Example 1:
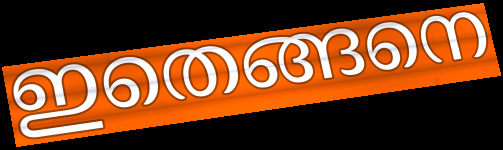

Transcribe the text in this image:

ഇതെങ്ങനെ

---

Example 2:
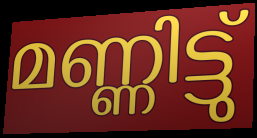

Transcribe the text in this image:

മണ്ണിട്ടു്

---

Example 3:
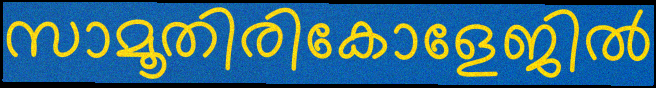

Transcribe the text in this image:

സാമൂതിരികോളേജിൽ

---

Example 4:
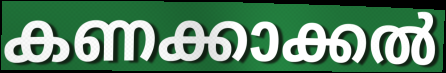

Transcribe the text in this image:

കണക്കാക്കൽ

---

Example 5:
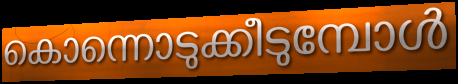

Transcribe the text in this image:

കൊന്നൊടുക്കീടുമ്പോൾ